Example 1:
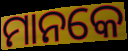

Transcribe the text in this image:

ମାନକେ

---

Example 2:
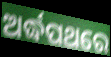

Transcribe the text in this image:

ଅର୍ଦ୍ଧପଥରେ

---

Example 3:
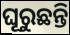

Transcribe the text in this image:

ଘୂରୁଛନ୍ତି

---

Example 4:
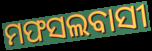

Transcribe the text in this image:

ମଫସଲବାସୀ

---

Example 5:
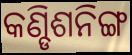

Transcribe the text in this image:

କଣ୍ଡିଶନିଙ୍ଗ